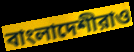
বাংলাদেশীরাও